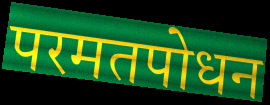
परमतपोधन